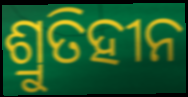
ଶ୍ରୁତିହୀନ